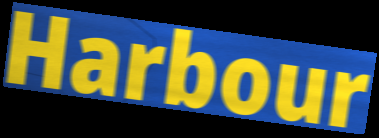
Harbour